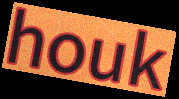
houk